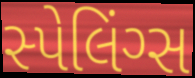
સ્પેલિંગ્સ